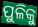
ପୁଳିକୁ